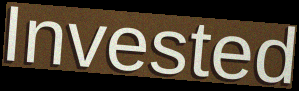
Invested